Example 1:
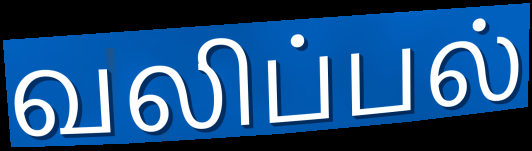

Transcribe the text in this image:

வலிப்பல்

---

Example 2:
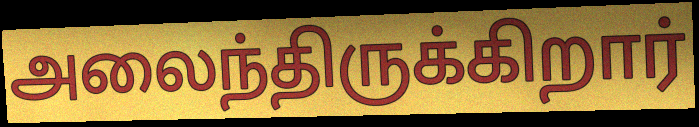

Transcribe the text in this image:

அலைந்திருக்கிறார்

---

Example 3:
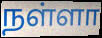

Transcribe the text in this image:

நள்ளா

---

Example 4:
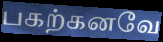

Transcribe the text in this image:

பகற்கனவே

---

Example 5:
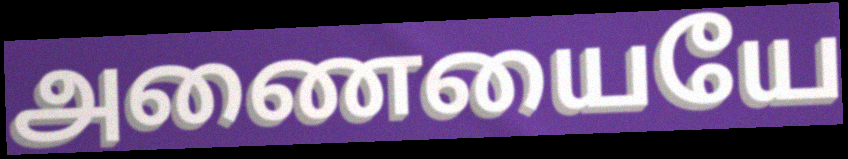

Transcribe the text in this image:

அணையையே